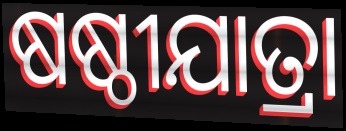
ଷଷ୍ଠୀଯାତ୍ରା